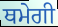
ਥਮੇਗੀ